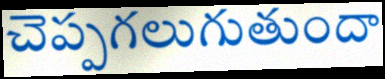
చెప్పగలుగుతుందా